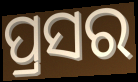
ପ୍ରସର